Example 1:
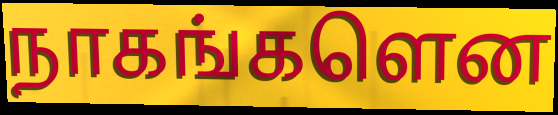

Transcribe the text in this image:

நாகங்களென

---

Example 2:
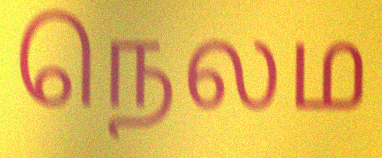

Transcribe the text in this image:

நெலம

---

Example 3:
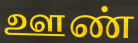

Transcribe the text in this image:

ஊண்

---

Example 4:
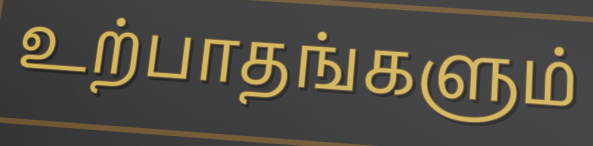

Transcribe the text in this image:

உற்பாதங்களும்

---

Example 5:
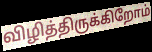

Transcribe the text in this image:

விழித்திருக்கிறோம்